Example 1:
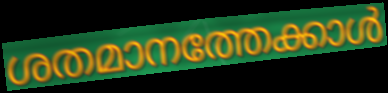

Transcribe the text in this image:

ശതമാനത്തേക്കാൾ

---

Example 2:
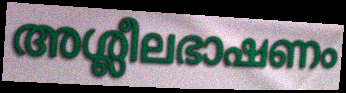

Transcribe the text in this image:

അശ്ലീലഭാഷണം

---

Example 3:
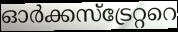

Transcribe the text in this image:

ഓർക്കസ്ട്രേറ്ററെ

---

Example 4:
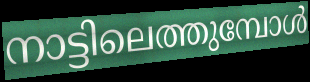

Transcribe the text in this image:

നാട്ടിലെത്തുമ്പോൾ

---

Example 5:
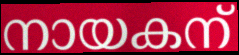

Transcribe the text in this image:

നായകന്